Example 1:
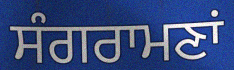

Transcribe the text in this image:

ਸੰਗਰਾਮਣਾਂ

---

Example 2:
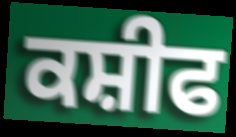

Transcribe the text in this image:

ਕਸ਼ੀਫ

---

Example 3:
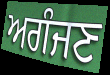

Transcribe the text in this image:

ਅਗੰਜਣ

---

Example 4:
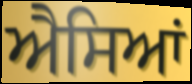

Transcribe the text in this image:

ਐਸਿਆਂ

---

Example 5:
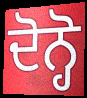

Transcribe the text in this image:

ਦੋਨ੍ਹੋ